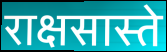
राक्षसास्ते